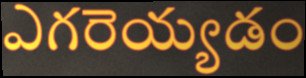
ఎగరెయ్యడం